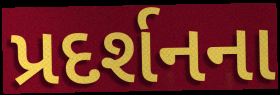
પ્રદર્શનના